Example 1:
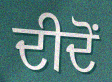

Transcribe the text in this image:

ਦੀਦੋਂ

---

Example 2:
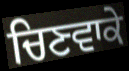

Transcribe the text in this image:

ਚਿਣਵਾਕੇ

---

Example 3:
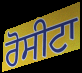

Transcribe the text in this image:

ਰੋਸੀਟਾ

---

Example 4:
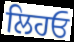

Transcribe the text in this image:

ਲਿਹਓ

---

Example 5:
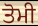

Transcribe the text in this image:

ਤੋਮੀ